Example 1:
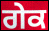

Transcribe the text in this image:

ਗੇਕ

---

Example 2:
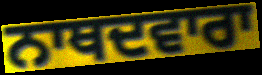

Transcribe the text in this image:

ਨਾਥਦਵਾਰਾ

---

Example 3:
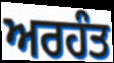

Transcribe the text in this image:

ਅਰਹੰਤ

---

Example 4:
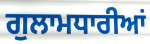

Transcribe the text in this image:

ਗੁਲਾਮਧਾਰੀਆਂ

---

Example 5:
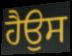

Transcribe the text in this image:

ਹੈਉਸ